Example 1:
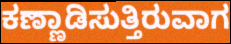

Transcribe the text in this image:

ಕಣ್ಣಾಡಿಸುತ್ತಿರುವಾಗ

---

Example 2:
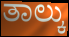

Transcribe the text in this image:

ತಾಲ್ಕು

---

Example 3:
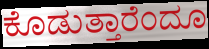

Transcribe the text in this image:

ಕೊಡುತ್ತಾರೆಂದೂ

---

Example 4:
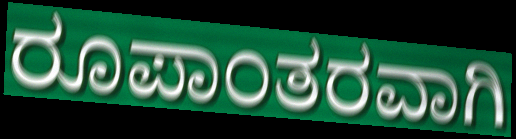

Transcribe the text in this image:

ರೂಪಾಂತರವಾಗಿ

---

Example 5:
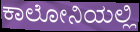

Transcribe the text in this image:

ಕಾಲೋನಿಯಲ್ಲಿ